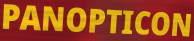
PANOPTICON